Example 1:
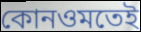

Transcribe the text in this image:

কোনওমতেই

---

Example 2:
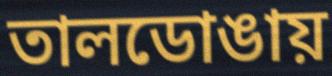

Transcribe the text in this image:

তালডোঙায়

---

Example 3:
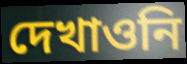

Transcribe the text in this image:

দেখাওনি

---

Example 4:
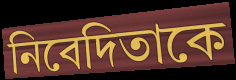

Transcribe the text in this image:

নিবেদিতাকে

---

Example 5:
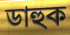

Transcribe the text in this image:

ডাহুক